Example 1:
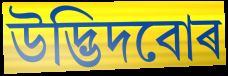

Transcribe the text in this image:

উদ্ভিদবোৰ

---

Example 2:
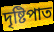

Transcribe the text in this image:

দৃষ্টিপাত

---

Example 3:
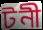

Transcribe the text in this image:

টনী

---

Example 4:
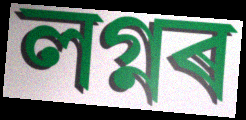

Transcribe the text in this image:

লগ্নৰ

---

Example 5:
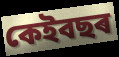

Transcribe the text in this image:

কেইবছৰ